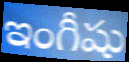
ఇంగీషు